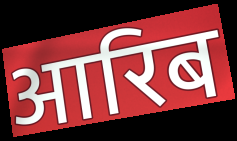
आरिब